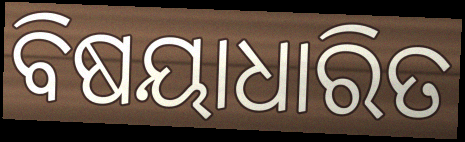
ବିଷୟାଧାରିତ